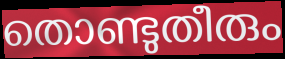
തൊണ്ടുതീരും